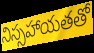
నిస్సహాయతతో